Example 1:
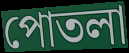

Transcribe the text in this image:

পোতলা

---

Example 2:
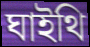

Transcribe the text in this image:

ঘাইথি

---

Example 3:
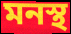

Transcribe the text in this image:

মনস্থ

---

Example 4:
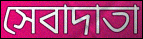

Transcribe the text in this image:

সেবাদাতা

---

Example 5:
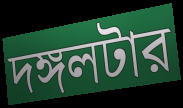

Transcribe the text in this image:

দঙ্গলটার